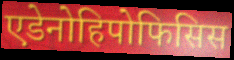
एडेनोहिपोफिसिस